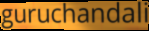
guruchandali